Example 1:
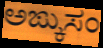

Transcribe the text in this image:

ಅಙ್ಕುಸಂ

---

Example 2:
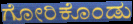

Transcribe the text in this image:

ಗೋರಿಕೊಂಡು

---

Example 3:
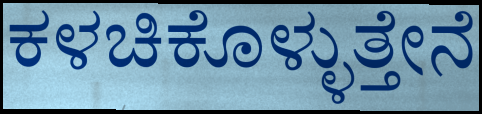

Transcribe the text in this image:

ಕಳಚಿಕೊಳ್ಳುತ್ತೇನೆ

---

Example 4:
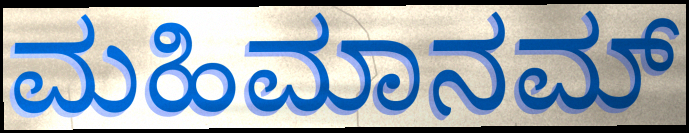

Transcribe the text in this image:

ಮಹಿಮಾನಮ್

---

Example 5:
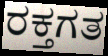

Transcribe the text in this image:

ರಕ್ತಗತ